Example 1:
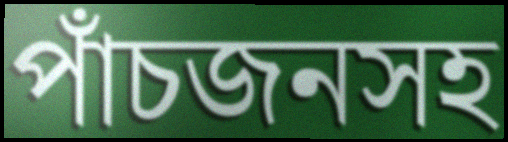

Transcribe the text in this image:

পাঁচজনসহ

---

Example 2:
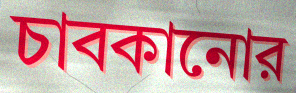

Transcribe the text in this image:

চাবকানোর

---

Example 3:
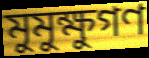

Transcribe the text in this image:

মুমুক্ষুগণ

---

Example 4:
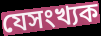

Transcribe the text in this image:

যেসংখ্যক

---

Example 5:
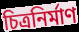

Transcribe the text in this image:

চিত্রনির্মাণ